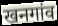
खनगांव